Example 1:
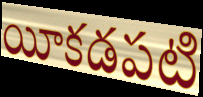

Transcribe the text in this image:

యీకడపటి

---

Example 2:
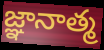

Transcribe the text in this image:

జ్ఞానాత్మ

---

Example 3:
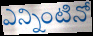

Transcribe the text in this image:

ఎన్నింటినో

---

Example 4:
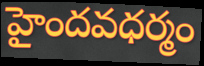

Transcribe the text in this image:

హైందవధర్మం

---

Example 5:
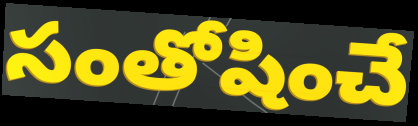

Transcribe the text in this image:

సంతోషించే